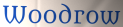
Woodrow